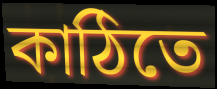
কাঠিতে